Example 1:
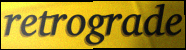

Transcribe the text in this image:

retrograde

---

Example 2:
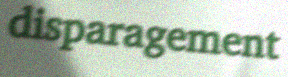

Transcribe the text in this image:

disparagement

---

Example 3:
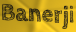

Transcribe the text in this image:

Banerji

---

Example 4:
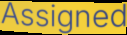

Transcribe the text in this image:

Assigned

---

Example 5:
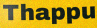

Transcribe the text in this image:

Thappu